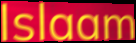
Islaam